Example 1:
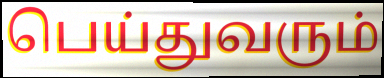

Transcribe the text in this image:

பெய்துவரும்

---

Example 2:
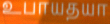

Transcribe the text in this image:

உபாயதயா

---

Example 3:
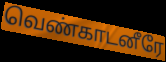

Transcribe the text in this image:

வெண்காடனீரே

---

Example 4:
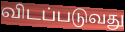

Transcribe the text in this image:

விடப்படுவது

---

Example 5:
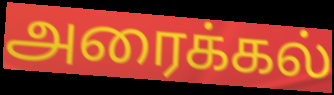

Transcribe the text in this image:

அரைக்கல்